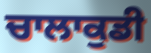
ਚਾਲਾਕੁਡੀ